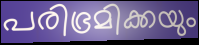
പരിഭ്രമിക്കയും